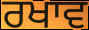
ਰਖਾਵ